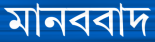
মানববাদ